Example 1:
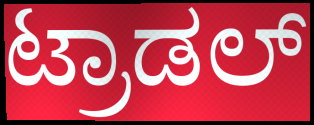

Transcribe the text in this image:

ಟ್ರಾಡಲ್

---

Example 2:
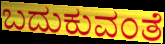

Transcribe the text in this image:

ಬದುಕುವಂತೆ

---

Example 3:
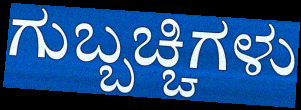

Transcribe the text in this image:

ಗುಬ್ಬಚ್ಚಿಗಳು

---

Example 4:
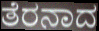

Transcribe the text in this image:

ತೆರನಾದ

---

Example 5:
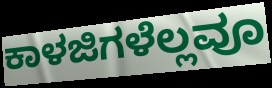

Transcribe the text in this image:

ಕಾಳಜಿಗಳೆಲ್ಲವೂ